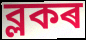
ব্লকৰ